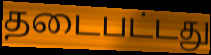
தடைபட்டது